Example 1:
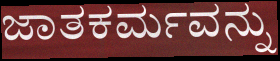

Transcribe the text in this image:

ಜಾತಕರ್ಮವನ್ನು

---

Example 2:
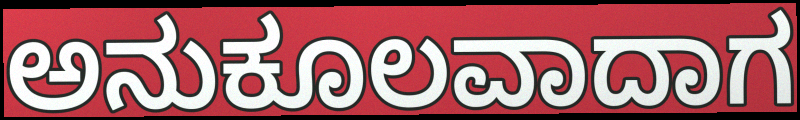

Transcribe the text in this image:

ಅನುಕೂಲವಾದಾಗ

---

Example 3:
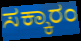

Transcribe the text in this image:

ಸಕ್ಕಾರಂ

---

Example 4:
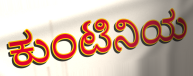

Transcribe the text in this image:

ಕುಂಟಿನಿಯ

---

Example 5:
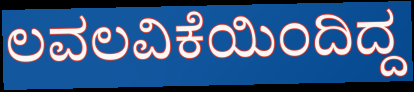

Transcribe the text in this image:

ಲವಲವಿಕೆಯಿಂದಿದ್ದ